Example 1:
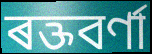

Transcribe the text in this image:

ৰক্তবৰ্ণা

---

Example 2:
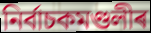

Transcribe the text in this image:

নিৰ্বাচকমণ্ডলীৰ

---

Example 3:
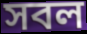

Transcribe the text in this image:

সবল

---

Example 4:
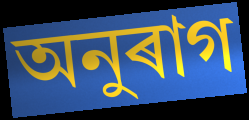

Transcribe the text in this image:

অনুৰাগ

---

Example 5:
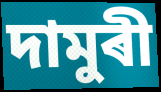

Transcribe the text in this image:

দামুৰী